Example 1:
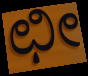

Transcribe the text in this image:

ಛೀ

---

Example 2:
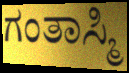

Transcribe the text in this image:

ಗಂತಾಸ್ಮಿ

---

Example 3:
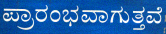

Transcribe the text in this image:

ಪ್ರಾರಂಭವಾಗುತ್ತವೆ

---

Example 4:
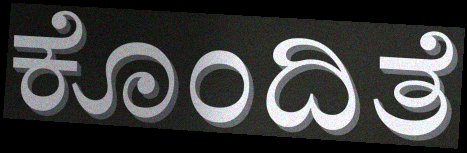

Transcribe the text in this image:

ಕೊಂದಿತೆ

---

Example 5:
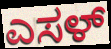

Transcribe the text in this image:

ಎಸಳ್